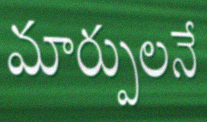
మార్పులనే